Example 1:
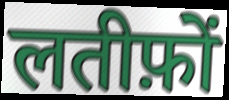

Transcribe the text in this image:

लतीफ़ों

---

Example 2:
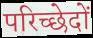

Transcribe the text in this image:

परिच्छेदों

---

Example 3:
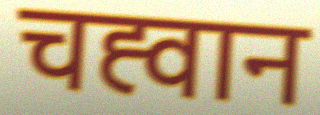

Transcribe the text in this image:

चह्वान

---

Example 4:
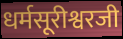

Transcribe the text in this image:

धर्मसूरीश्वरजी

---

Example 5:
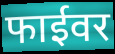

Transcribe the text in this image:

फाईवर